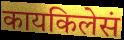
कायकिलेसं